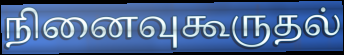
நினைவுகூருதல்